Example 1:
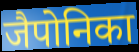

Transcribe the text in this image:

जैपोनिका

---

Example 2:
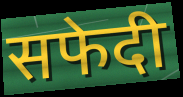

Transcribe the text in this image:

सफेदी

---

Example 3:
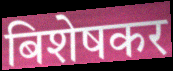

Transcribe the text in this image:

बिशेषकर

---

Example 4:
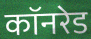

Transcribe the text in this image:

कॉनरेड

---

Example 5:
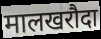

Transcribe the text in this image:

मालखरौदा